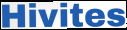
Hivites